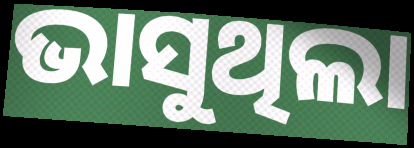
ଭାସୁଥିଲା